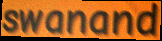
swanand